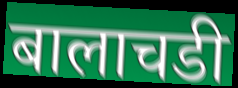
बालाचडी